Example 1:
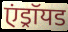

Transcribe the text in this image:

एंड्रॉयड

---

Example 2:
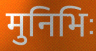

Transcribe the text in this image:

मुनिभिः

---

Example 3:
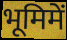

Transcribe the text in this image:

भूमिमें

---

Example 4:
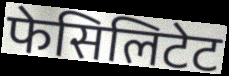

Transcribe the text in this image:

फेसिलिटेट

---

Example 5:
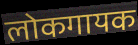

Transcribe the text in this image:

लोकगायक